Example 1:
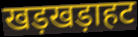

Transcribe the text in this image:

खड़खड़ाहट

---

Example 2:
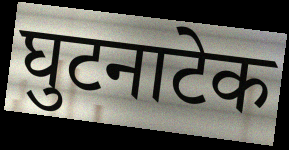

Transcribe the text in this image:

घुटनाटेक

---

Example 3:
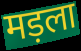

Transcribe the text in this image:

मड़ला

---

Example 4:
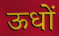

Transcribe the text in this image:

ऊधों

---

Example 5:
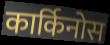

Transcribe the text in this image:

कार्किनोस